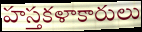
హస్తకళాకారులు